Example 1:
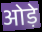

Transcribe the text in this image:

ओड़े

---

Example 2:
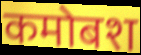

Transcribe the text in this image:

कमोबश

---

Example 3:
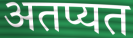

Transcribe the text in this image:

अतप्यत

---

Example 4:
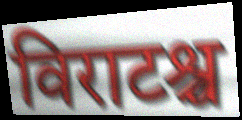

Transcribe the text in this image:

विराटश्च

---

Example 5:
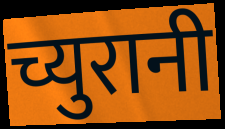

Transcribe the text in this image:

च्युरानी